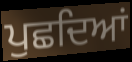
ਪੁਛਦਿਆਂ